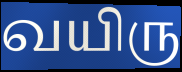
வயிரு